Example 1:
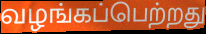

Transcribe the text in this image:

வழங்கப்பெற்றது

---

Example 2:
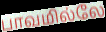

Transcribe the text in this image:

பாவமில்லே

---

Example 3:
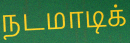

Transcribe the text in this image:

நடமாடிக்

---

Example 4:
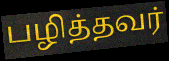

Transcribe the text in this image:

பழித்தவர்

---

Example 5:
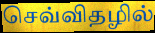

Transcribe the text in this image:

செவ்விதழில்